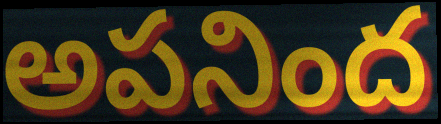
అపనింద